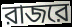
রাজরে